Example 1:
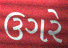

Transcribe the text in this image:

ઉગરે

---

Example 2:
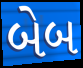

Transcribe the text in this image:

બેબ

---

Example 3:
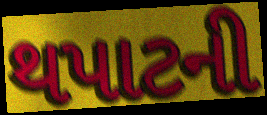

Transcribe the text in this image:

થપાટની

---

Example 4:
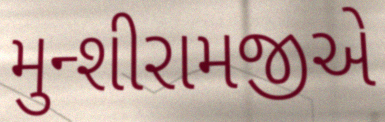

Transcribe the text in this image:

મુન્શીરામજીએ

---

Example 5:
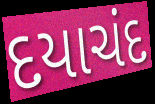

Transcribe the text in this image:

દયાચંદ